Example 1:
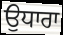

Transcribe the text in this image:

ਉਧਾਰਾ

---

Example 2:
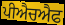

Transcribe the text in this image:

ਪੀਐਚਐਫ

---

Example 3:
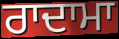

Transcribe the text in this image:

ਰਾਦਾਮਾ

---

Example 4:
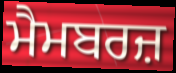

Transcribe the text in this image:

ਮੈਮਬਰਜ਼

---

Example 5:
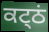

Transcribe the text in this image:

ਕਟ੍ਠਂ